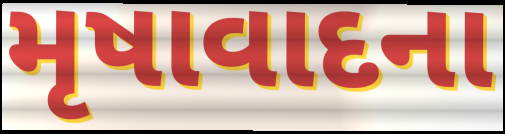
મૃષાવાદના